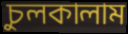
চুলকালাম